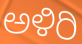
ಅಳಿರಿ